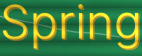
Spring